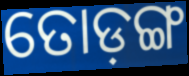
ତୋଡ଼ଙ୍ଗ